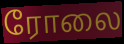
ரோலை